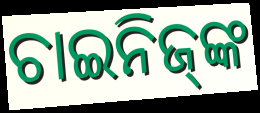
ଚାଇନିଜ୍‌ଙ୍କ